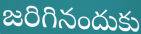
జరిగినందుకు